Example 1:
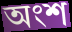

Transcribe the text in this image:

অংশ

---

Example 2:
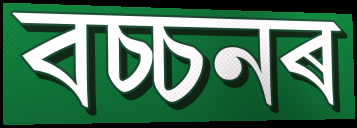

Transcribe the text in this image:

বচ্চনৰ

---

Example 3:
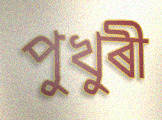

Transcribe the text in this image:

পুখুৰী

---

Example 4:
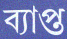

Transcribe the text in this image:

ব্যাপ্ত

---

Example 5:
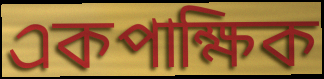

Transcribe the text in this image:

একপাক্ষিক